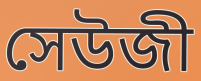
সেউজী